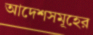
আদেশসমূহের